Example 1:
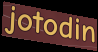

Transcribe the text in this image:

jotodin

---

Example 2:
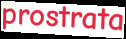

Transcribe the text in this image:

prostrata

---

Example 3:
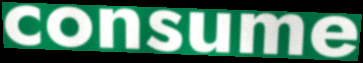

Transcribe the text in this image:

consume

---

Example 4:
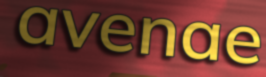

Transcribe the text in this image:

avenae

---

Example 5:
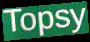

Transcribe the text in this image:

Topsy